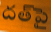
దత్‌పై